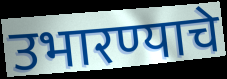
उभारण्याचे